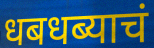
धबधब्याचं